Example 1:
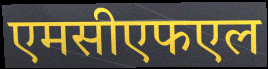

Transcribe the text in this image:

एमसीएफएल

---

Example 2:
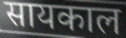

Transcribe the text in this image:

सायकाल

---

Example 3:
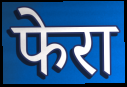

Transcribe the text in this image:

फेरा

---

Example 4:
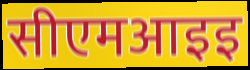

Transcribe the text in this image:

सीएमआइइ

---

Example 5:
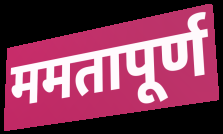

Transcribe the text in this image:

ममतापूर्ण